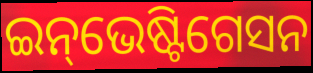
ଇନ୍‌ଭେଷ୍ଟିଗେସନ